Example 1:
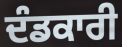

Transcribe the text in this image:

ਦੰਡਕਾਰੀ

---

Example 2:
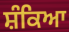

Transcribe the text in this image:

ਸ਼ੰਕਿਆ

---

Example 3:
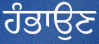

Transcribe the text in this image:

ਹੰਭਾਉਣ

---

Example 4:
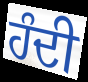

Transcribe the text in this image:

ਹੰਦੀ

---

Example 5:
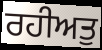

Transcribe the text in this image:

ਰਹੀਅਤੁ